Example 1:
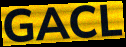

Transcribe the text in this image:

GACL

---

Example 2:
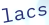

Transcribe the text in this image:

lacs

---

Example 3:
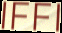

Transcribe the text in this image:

IFFI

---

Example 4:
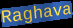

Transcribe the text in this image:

Raghava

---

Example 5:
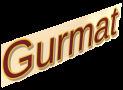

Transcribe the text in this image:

Gurmat